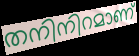
തനിനിറമാണ്